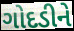
ગોદડીને